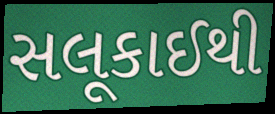
સલૂકાઈથી